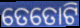
ତେତୋଟି